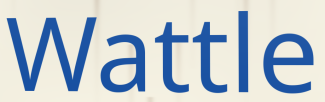
Wattle